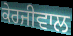
ਕੇਰਜੀਵਾਲ